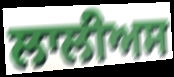
ਲਾਲੀਅਸ